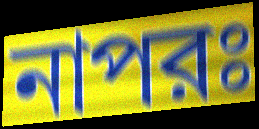
নাপরঃ